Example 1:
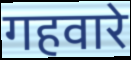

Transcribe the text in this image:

गहवारे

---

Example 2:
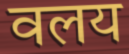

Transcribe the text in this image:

वलय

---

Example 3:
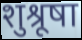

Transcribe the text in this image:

शुश्रूषा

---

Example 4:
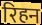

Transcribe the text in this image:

रिहन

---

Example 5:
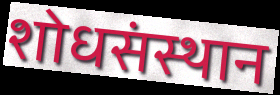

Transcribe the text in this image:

शोधसंस्थान